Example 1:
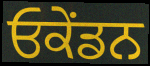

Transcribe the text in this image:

ਓਕੇਂਡਨ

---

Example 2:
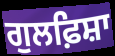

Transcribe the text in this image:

ਗੁਲਫ਼ਿਸ਼ਾ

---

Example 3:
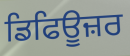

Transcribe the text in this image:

ਡਿਫਿਊਜ਼ਰ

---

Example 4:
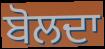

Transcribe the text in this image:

ਬੋਲਦਾ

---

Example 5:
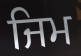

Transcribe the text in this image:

ਜਿਮ